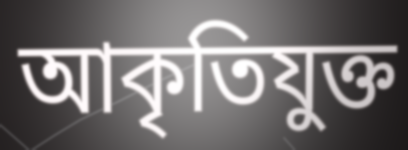
আকৃতিযুক্ত